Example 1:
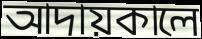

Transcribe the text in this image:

আদায়কালে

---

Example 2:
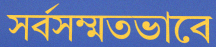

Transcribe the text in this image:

সর্বসম্মতভাবে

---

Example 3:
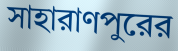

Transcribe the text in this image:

সাহারাণপুরের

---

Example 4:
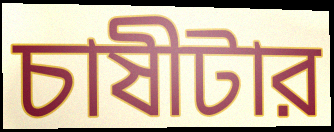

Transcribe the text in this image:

চাষীটার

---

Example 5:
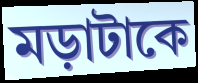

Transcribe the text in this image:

মড়াটাকে